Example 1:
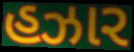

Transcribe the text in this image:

હઝાર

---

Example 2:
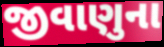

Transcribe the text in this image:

જીવાણુના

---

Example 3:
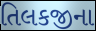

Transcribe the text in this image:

તિલકજીના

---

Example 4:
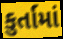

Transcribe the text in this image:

કુર્તામાં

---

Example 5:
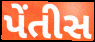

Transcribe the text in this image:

પેંતીસ